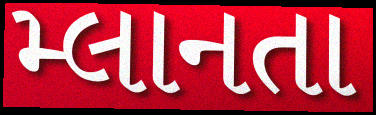
મ્લાનતા